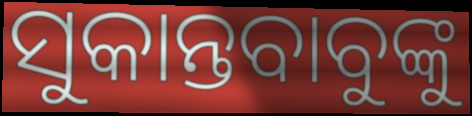
ସୁକାନ୍ତବାବୁଙ୍କୁ